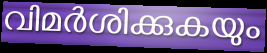
വിമർശിക്കുകയും